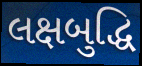
લક્ષબુદ્ધિ